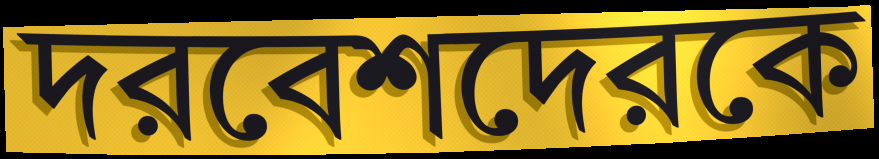
দরবেশদেরকে